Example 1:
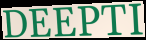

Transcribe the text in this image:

DEEPTI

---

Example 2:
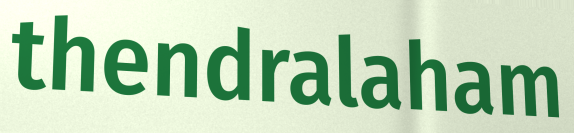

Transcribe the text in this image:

thendralaham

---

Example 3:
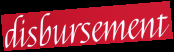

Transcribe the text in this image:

disbursement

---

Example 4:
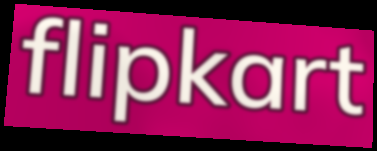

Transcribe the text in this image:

flipkart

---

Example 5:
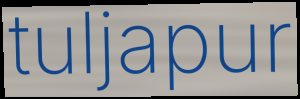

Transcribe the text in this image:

tuljapur